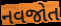
નવજોત